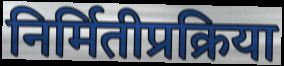
निर्मितीप्रक्रिया